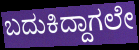
ಬದುಕಿದ್ದಾಗಲೇ